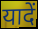
यादें